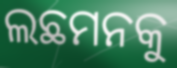
ଲଛମନକୁ